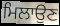
ਮਿਲਾਉਣ